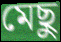
মেছু